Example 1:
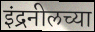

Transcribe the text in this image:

इंद्रनीलच्या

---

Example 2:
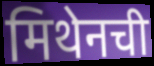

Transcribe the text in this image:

मिथेनची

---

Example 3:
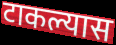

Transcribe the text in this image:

टाकल्यास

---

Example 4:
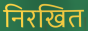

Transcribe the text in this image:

निरखित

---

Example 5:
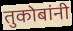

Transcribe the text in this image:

तुकोबांनी